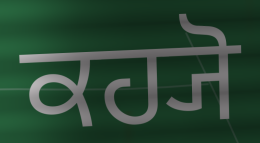
ਕਹ੍ਯੋ